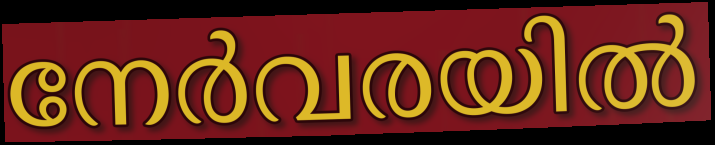
നേർവരയിൽ